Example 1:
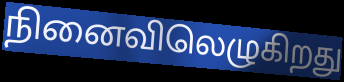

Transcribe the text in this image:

நினைவிலெழுகிறது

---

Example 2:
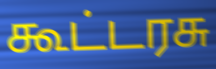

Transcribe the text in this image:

கூட்டரசு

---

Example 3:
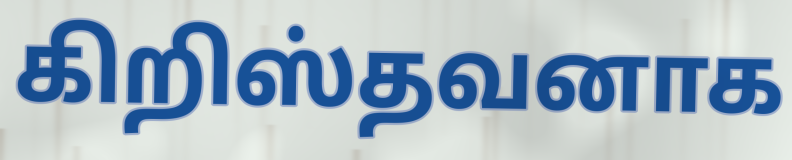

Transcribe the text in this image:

கிறிஸ்தவனாக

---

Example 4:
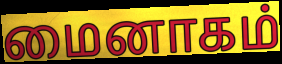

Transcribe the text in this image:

மைனாகம்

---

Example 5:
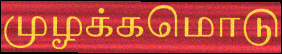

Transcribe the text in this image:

முழக்கமொடு